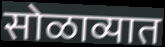
सोळाव्यात